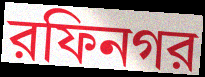
রফিনগর